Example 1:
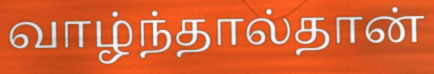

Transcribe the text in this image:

வாழ்ந்தால்தான்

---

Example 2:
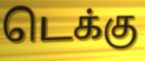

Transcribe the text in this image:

டெக்கு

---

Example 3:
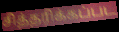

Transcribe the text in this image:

சித்தரிக்கப்பட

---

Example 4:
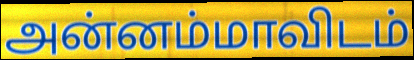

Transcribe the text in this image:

அன்னம்மாவிடம்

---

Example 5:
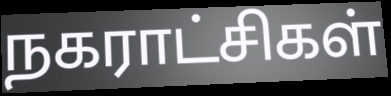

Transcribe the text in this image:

நகராட்சிகள்